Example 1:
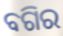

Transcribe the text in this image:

ବଗିର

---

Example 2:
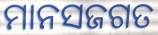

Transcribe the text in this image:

ମାନସଜଗତ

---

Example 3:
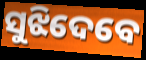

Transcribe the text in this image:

ସୁଝିଦେବେ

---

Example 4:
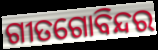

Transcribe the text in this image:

ଗୀତଗୋବିନ୍ଦର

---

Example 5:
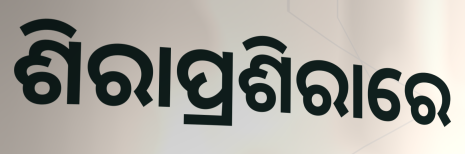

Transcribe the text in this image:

ଶିରାପ୍ରଶିରାରେ